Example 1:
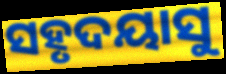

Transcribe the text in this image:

ସହୃଦୟାସୁ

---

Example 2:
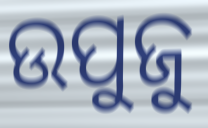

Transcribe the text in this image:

ଉପୁଜୁ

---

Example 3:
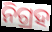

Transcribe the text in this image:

ନିଗ୍ରହ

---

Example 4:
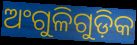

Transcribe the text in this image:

ଅଂଗୁଳିଗୁଡ଼ିକ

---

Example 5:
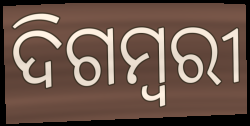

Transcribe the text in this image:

ଦିଗମ୍ୱରୀ